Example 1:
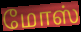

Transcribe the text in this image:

மோஸ்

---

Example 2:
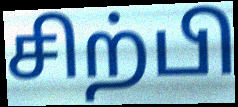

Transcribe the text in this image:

சிற்பி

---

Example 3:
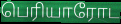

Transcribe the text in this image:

பெரியாரோட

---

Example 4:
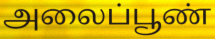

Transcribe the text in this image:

அலைப்பூண்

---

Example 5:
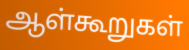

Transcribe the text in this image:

ஆள்கூறுகள்